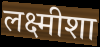
लक्ष्मीशा